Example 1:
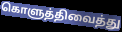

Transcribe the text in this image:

கொளுத்திவைத்து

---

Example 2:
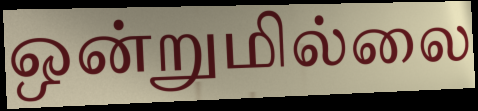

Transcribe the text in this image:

ஒன்றுமில்லை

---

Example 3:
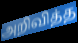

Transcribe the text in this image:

அறிவித்த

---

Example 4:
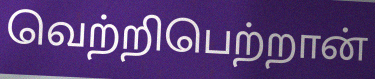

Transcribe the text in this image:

வெற்றிபெற்றான்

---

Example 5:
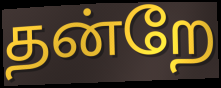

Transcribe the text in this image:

தன்றே